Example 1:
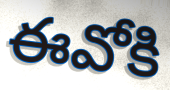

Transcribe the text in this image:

ఈవోకి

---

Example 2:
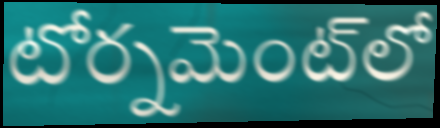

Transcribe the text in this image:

టోర్నమెంట్‌లో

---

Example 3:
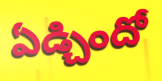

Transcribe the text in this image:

ఏడ్చిందో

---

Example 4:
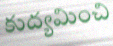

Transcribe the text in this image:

కుద్యమించి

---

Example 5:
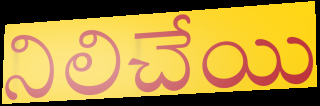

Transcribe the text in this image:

నిలిచేయి